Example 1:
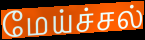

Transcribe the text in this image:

மேய்ச்சல்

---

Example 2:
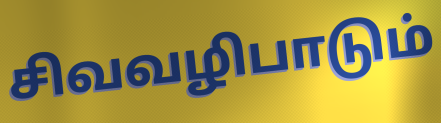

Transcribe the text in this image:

சிவவழிபாடும்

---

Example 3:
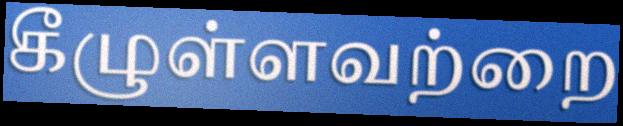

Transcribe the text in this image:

கீழுள்ளவற்றை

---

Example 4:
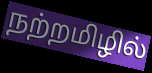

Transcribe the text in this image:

நற்றமிழில்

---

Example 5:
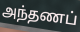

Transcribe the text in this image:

அந்தணப்